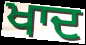
ਖਾਦ